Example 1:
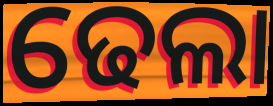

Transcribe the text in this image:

ଢେଲା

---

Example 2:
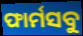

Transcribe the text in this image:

ଫାର୍ମସବୁ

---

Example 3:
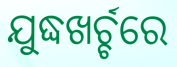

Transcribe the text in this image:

ଯୁଦ୍ଧଖର୍ଚ୍ଚରେ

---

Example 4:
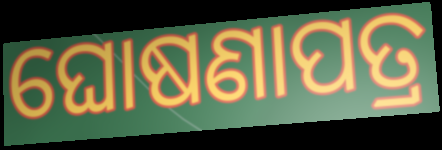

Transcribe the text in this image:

ଘୋଷଣାପତ୍ର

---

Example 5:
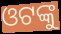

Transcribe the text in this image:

ଓଟଙ୍କୁ